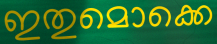
ഇതുമൊക്കെ